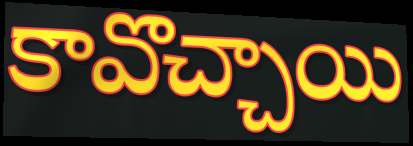
కావొచ్చాయి